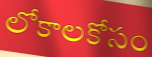
లోకాలకోసం